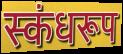
स्कंधरूप